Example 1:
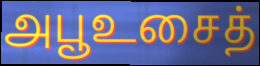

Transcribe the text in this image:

அபூஉசைத்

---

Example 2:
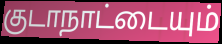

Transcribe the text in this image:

குடாநாட்டையும்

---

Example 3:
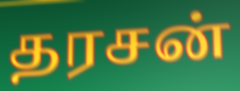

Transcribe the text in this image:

தரசன்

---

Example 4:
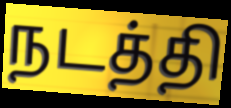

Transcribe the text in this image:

நடத்தி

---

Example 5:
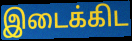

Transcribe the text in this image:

இடைக்கிட